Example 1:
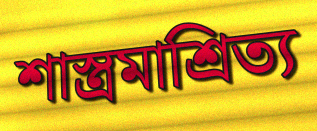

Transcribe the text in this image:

শাস্ত্রমাশ্রিত্য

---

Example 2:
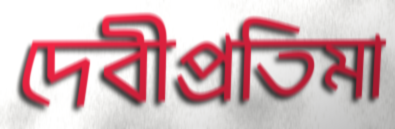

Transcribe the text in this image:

দেবীপ্রতিমা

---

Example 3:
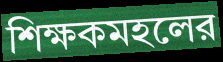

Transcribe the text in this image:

শিক্ষকমহলের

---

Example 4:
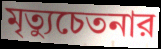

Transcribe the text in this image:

মৃত্যুচেতনার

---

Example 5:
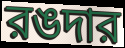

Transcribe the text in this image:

রঙদার